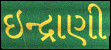
ઇન્દ્રાણી